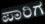
ಪಾರಿಗ